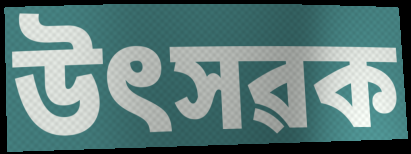
উৎসৱক